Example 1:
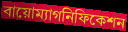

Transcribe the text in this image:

বায়োম্যাগনিফিকেশন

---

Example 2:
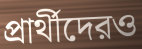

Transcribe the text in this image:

প্রার্থীদেরও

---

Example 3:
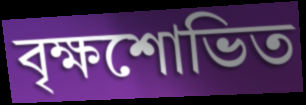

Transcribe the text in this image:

বৃক্ষশোভিত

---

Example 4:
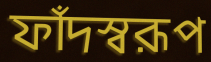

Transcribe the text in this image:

ফাঁদস্বরূপ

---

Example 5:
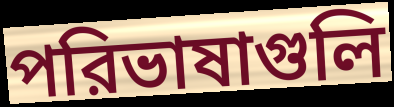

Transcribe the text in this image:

পরিভাষাগুলি